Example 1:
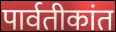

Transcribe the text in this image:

पार्वतीकांत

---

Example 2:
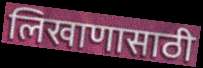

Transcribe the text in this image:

लिखाणासाठी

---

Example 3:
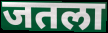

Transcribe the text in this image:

जतला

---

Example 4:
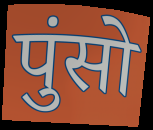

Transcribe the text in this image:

पुंसो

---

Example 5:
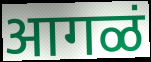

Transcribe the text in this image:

आगळं